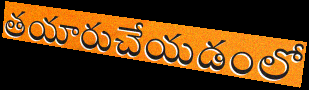
తయారుచేయడంలో